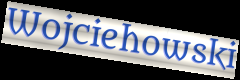
Wojciehowski